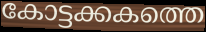
കോട്ടക്കകത്തെ